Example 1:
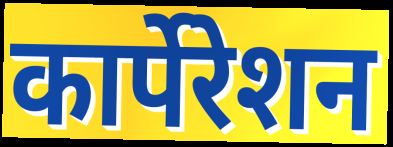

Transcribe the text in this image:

कार्पेरेशन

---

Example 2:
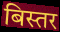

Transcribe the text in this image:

बिस्‍तर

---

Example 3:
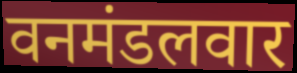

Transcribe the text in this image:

वनमंडलवार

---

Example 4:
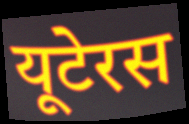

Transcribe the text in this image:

यूटेरस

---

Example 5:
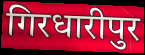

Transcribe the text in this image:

गिरधारीपुर